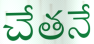
చేతనే